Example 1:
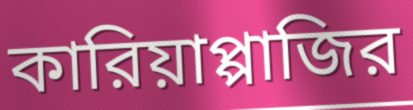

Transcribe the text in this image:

কারিয়াপ্পাজির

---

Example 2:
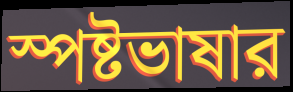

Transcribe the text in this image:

স্পষ্টভাষার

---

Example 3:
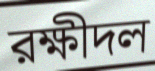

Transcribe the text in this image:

রক্ষীদল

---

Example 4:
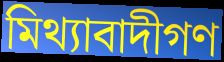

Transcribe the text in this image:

মিথ্যাবাদীগণ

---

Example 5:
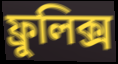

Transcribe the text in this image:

ফ্রুলিক্স